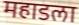
महाडला